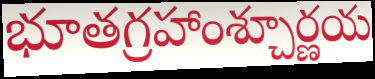
భూతగ్రహాంశ్చూర్ణయ